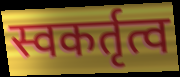
स्वकर्तृत्व